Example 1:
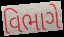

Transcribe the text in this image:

વિભાગે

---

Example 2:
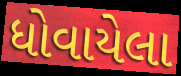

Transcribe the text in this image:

ધોવાયેલા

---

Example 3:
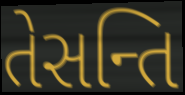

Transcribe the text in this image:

તેસન્તિ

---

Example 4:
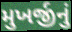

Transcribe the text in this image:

મુખર્જીનું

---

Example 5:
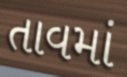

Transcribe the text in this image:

તાવમાં